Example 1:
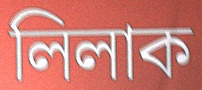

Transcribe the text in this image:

লিলাক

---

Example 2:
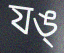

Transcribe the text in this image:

যঙ্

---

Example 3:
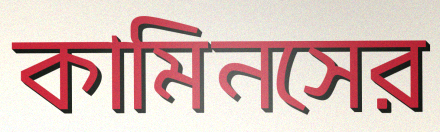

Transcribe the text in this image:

কামিনসের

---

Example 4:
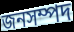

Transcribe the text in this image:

জনসম্পদ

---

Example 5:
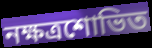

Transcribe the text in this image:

নক্ষত্রশোভিত